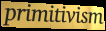
primitivism